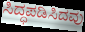
ಸಿದ್ಧಪಡಿಸಿದವು